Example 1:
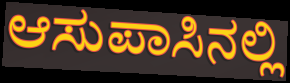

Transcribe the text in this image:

ಆಸುಪಾಸಿನಲ್ಲಿ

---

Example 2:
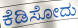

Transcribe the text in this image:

ಕೆಡಿಸೋದು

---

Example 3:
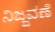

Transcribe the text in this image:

ನಿಜ್ಜವಣೆ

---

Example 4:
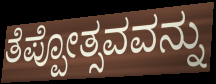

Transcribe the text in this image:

ತೆಪ್ಪೋತ್ಸವವನ್ನು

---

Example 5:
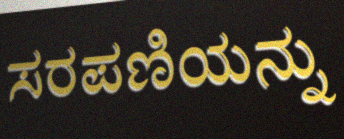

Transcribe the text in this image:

ಸರಪಣಿಯನ್ನು